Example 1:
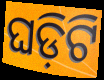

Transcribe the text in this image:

ଘଡ଼ିଟି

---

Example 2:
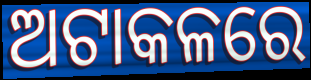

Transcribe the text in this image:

ଅଟାକଳରେ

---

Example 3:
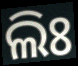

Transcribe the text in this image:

ଲିଃ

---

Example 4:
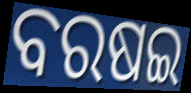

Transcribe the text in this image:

ବରଷଇ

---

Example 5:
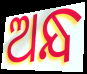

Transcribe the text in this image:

ଅନ୍ଧ